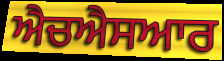
ਐਚਐਸਆਰ